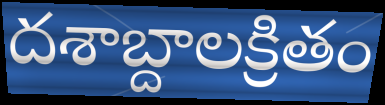
దశాబ్దాలక్రితం